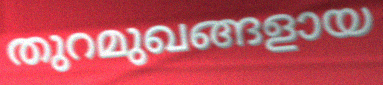
തുറമുഖങ്ങളായ